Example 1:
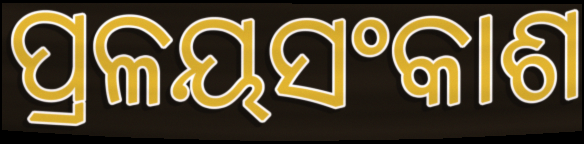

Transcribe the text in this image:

ପ୍ରଳୟସଂକାଶ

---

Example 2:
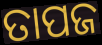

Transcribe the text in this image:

ତାପଜ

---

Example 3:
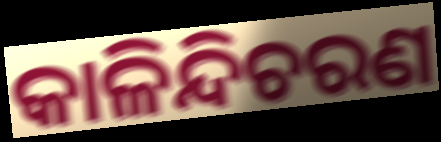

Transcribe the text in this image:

କାଳିନ୍ଦିଚରଣ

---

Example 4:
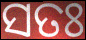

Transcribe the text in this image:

ସତଃ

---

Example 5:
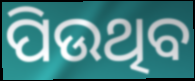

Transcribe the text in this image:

ପିଉଥିବ